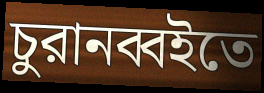
চুরানব্বইতে